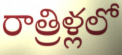
రాత్రిళ్లలో